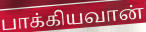
பாக்கியவான்